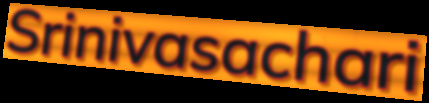
Srinivasachari